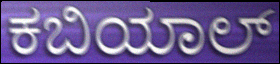
ಕಬಿಯಾಲ್